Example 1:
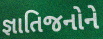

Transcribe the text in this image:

જ્ઞાતિજનોને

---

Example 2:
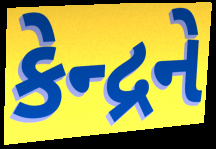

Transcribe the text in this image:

કેન્દ્રને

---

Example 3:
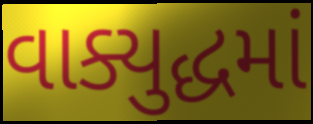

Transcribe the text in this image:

વાક્યુદ્ધમાં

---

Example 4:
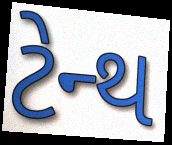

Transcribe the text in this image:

ટેન્થ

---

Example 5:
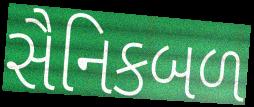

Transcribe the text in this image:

સૈનિકબળ